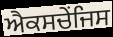
ਐਕਸਚੇਂਜਿਸ